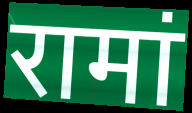
रामां